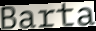
Barta